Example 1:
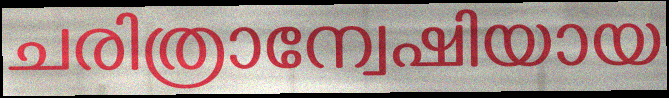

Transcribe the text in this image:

ചരിത്രാന്വേഷിയായ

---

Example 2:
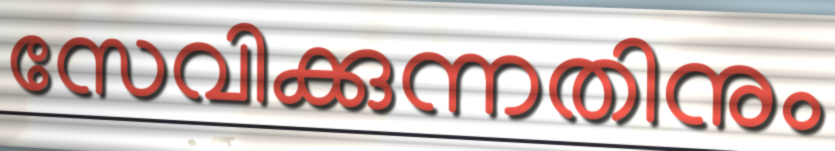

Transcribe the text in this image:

സേവിക്കുന്നതിനും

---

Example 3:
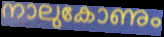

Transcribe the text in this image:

നാലുകോണും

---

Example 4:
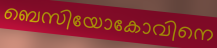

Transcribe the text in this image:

ബെസിയോകോവിനെ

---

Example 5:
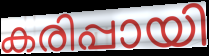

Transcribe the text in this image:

കരിപ്പായി